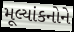
મૂલ્યાંકનોને